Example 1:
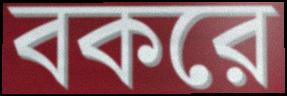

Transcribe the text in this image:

বকরে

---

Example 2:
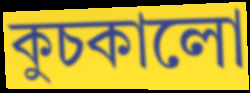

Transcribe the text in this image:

কুচকালো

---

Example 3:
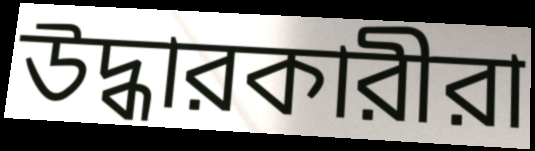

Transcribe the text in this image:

উদ্ধারকারীরা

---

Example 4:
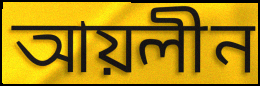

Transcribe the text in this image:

আয়লীন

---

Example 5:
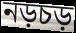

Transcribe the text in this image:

নড়চড়